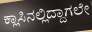
ಕ್ಲಾಸಿನಲ್ಲಿದ್ದಾಗಲೇ